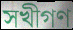
সখীগণ